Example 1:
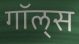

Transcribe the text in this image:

गॉल्स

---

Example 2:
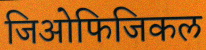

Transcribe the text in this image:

जिओफिजिकल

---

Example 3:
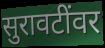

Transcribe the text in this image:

सुरावटींवर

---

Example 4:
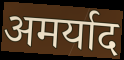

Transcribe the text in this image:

अमर्याद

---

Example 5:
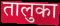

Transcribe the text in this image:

तालुका